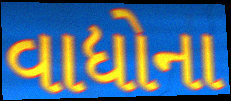
વાદ્યોના